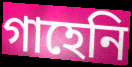
গাহেনি